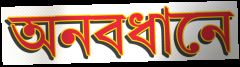
অনবধানে